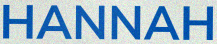
HANNAH